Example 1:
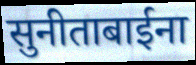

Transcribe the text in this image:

सुनीताबाईना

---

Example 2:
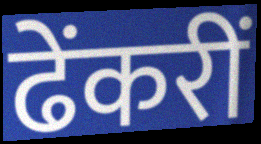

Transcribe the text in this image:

ढेंकरीं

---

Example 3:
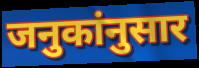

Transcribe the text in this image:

जनुकांनुसार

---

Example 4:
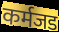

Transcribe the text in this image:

कर्मजड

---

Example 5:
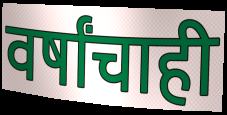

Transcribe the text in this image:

वर्षांचाही